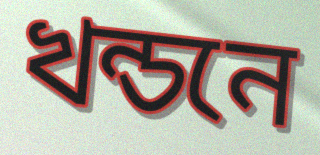
খন্ডনে